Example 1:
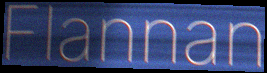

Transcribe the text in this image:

Flannan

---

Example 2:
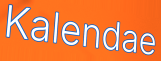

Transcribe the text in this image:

Kalendae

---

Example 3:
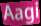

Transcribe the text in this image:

Aagi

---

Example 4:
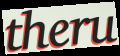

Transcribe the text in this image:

theru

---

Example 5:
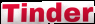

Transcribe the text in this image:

Tinder